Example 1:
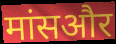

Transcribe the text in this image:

मांसऔर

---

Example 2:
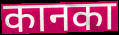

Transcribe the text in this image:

कानका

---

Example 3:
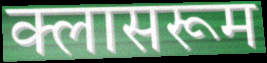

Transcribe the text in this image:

क्लासरूम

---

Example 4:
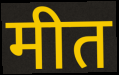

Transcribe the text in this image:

मीत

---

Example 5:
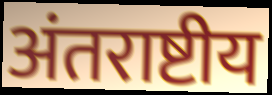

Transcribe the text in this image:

अंतराष्टीय